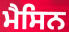
ਮੈਸਿਨ